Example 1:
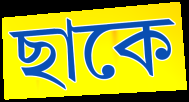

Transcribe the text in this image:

ছাকে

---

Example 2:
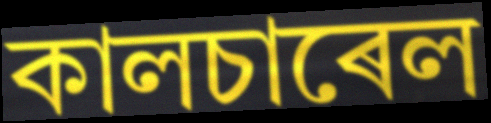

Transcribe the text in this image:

কালচাৰেল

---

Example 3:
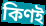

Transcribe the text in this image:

কিণই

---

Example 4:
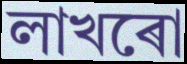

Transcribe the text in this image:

লাখৰো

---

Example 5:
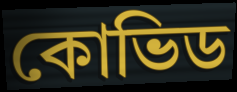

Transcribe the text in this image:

কোভিড